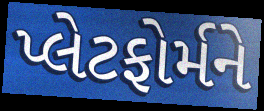
પ્લેટફોર્મને